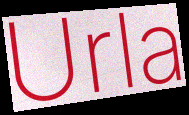
Urla